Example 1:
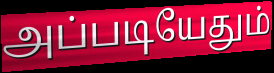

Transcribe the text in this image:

அப்படியேதும்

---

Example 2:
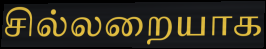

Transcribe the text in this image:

சில்லறையாக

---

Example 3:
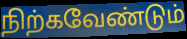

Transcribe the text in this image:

நிற்கவேண்டும்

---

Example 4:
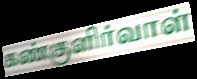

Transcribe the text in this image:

கண்குளிர்வாள்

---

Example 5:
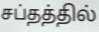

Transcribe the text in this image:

சப்தத்தில்